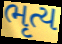
ભૃત્ય